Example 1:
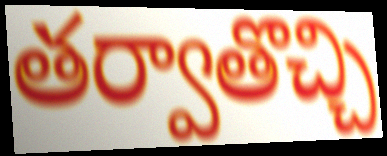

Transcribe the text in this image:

తర్వాతొచ్చి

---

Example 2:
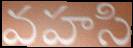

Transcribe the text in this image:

వహసి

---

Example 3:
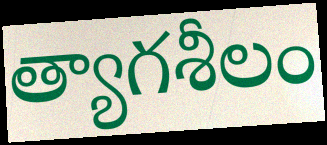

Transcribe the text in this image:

త్యాగశీలం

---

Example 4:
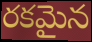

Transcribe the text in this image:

రకమైన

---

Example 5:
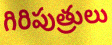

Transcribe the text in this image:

గిరిపుత్రులు